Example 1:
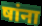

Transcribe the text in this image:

षांना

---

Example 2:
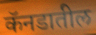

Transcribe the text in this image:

कॅनडातील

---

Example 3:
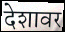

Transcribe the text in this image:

देशावर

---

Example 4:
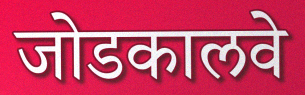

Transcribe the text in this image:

जोडकालवे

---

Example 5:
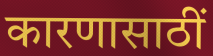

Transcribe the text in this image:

कारणासाठीं